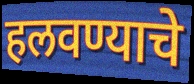
हलवण्याचे